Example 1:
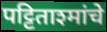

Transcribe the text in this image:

पट्टिताश्मांचे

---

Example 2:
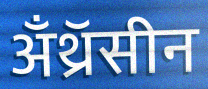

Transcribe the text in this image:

अँथ्रॅसीन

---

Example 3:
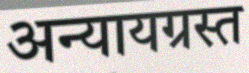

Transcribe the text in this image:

अन्यायग्रस्त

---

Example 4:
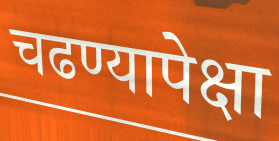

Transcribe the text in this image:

चढण्यापेक्षा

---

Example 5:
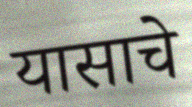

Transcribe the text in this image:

यासाचे